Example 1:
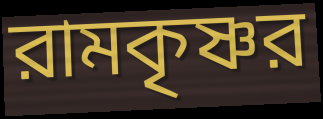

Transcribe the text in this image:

রামকৃষ্ণর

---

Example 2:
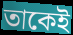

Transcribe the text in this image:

তাকেই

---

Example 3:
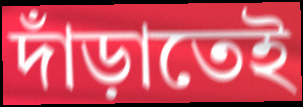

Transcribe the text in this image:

দাঁড়াতেই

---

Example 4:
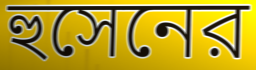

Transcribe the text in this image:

হুসেনের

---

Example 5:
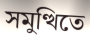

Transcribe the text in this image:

সমুত্থিতে